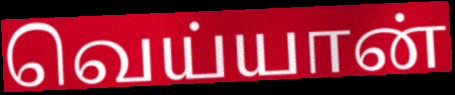
வெய்யான்